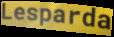
Lesparda